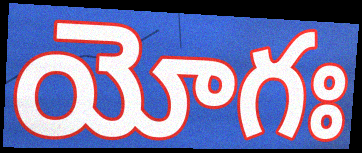
యోగః